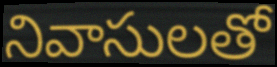
నివాసులతో